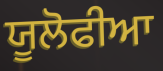
ਯੂਲੋਫੀਆ